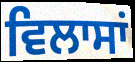
ਵਿਲਾਸਾਂ